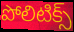
పోలిటిక్స్